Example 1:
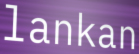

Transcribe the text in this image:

lankan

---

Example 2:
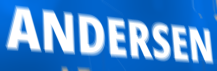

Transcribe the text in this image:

ANDERSEN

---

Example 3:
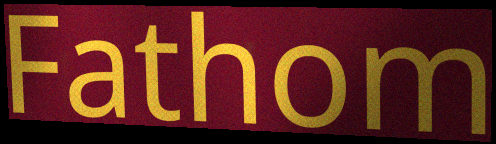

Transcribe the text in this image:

Fathom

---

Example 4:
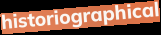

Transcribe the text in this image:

historiographical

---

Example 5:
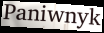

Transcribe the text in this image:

Paniwnyk